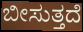
ಬೀಸುತ್ತದೆ